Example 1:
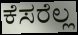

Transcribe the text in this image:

ಕೆಸರೆಲ್ಲ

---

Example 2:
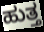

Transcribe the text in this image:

ಹುತ್ತ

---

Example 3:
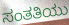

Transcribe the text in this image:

ಸಂತತಿಯು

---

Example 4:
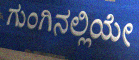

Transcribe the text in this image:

ಗುಂಗಿನಲ್ಲಿಯೇ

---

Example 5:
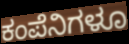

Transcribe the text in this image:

ಕಂಪೆನಿಗಳೂ